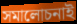
সমালোচনাই